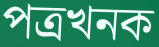
পত্ৰখনক